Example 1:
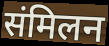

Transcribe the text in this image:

संमिलन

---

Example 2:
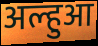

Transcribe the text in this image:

अल्हुआ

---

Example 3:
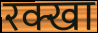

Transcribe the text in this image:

रक्खा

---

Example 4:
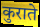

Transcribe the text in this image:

कुराते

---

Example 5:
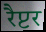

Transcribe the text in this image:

रैप्टर